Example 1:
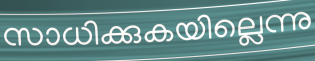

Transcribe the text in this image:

സാധിക്കുകയില്ലെന്നു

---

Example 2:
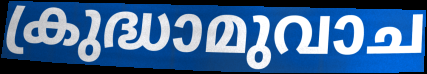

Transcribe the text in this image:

ക്രുദ്ധാമുവാച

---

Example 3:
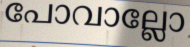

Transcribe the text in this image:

പോവാല്ലോ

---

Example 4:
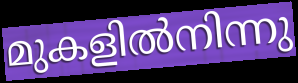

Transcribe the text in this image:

മുകളിൽനിന്നു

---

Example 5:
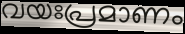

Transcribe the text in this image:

വയഃപ്രമാണം